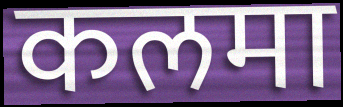
कलमा